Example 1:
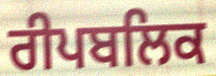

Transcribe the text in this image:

ਰੀਪਬਲਿਕ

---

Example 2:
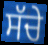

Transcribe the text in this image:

ਸੱਚੇ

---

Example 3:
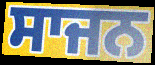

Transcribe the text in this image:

ਸਾਜਨ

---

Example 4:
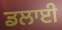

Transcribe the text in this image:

ਡਲਾਈ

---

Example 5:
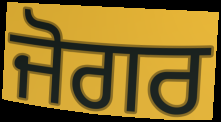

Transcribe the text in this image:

ਜੋਗਰ